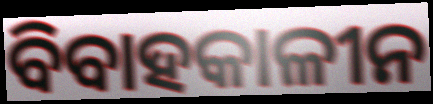
ବିବାହକାଳୀନ